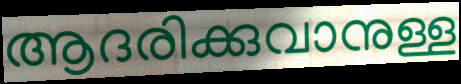
ആദരിക്കുവാനുള്ള